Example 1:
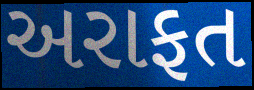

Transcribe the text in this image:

અરાફત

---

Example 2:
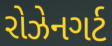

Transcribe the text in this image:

રોઝેનગર્ટ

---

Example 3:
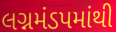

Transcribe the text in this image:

લગ્નમંડપમાંથી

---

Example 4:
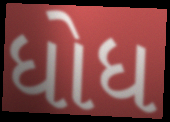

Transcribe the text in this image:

ધોધ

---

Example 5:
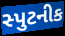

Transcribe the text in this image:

સ્પુટનીક